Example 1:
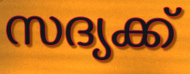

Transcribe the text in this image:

സദ്യക്ക്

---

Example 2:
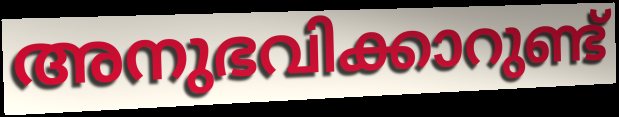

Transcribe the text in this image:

അനുഭവിക്കാറുണ്ട്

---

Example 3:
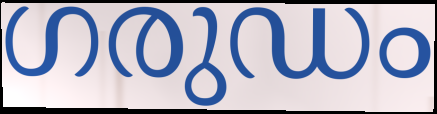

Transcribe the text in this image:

ഗരുഡം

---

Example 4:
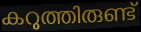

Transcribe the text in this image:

കറുത്തിരുണ്ട്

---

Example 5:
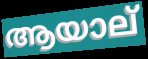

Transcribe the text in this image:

ആയാല്